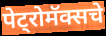
पेट्रोमॅक्सचे